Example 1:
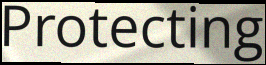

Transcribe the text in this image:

Protecting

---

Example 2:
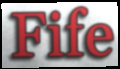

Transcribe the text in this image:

Fife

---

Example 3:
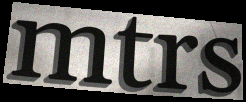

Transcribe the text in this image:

mtrs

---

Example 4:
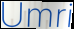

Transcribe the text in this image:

Umri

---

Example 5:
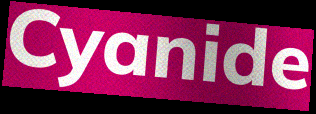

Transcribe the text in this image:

Cyanide